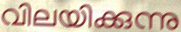
വിലയിക്കുന്നു